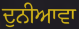
ਦੁਨੀਆਵਾ